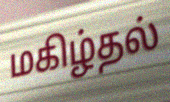
மகிழ்தல்